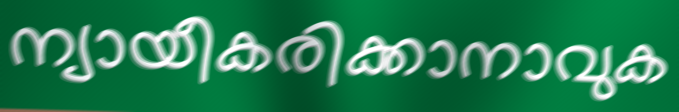
ന്യായീകരിക്കാനാവുക